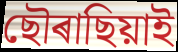
ছৌৰাছিয়াই